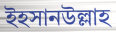
ইহসানউল্লাহ